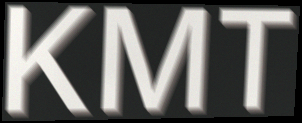
KMT